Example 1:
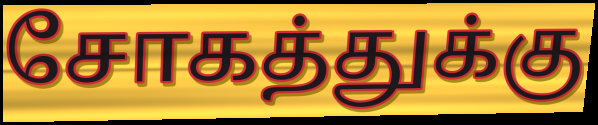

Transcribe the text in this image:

சோகத்துக்கு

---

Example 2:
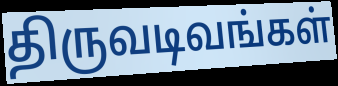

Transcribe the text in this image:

திருவடிவங்கள்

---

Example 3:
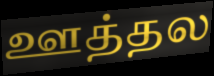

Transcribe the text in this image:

ஊத்தல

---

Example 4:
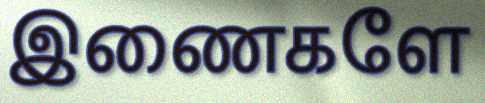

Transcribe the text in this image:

இணைகளே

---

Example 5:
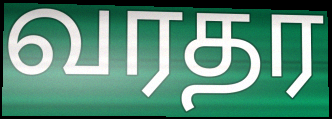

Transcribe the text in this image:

வரதர